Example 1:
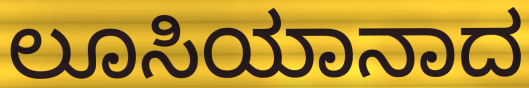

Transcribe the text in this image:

ಲೂಸಿಯಾನಾದ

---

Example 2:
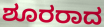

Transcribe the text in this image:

ಶೂರರಾದ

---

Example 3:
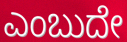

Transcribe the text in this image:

ಎಂಬುದೇ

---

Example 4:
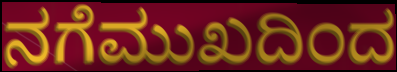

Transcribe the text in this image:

ನಗೆಮುಖದಿಂದ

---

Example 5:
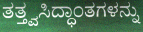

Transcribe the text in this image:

ತತ್ತ್ವಸಿದ್ಧಾಂತಗಳನ್ನು